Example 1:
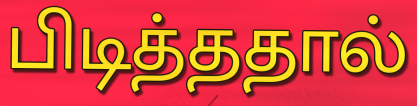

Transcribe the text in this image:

பிடித்ததால்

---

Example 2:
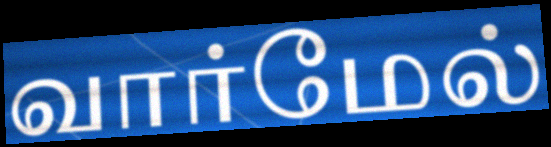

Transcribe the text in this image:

வார்மேல்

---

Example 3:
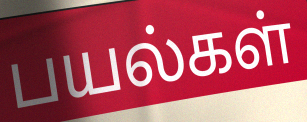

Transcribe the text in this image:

பயல்கள்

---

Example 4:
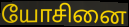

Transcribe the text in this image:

யோசினை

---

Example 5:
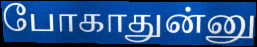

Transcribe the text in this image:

போகாதுன்னு